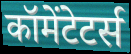
कॉमेंटेटर्स